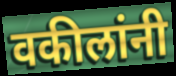
वकीलांनी